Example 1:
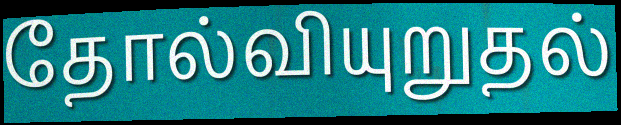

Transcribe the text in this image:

தோல்வியுறுதல்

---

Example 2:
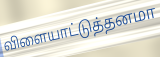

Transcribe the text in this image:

விளையாட்டுத்தனமா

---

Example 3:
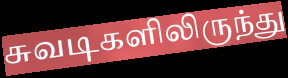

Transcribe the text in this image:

சுவடிகளிலிருந்து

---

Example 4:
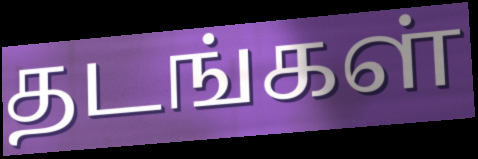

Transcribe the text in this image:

தடங்கள்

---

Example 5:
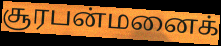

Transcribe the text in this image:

சூரபன்மனைக்